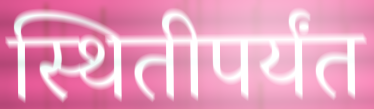
स्थितीपर्यंत